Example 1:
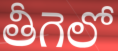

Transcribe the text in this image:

తీగెలో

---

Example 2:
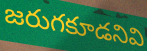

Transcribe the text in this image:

జరుగకూడనివి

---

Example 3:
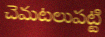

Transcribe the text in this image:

చెమటలుపట్టి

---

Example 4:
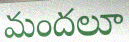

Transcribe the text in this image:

మందలూ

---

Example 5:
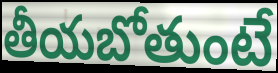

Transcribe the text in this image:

తీయబోతుంటే